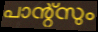
പാന്റ്സും